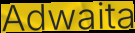
Adwaita